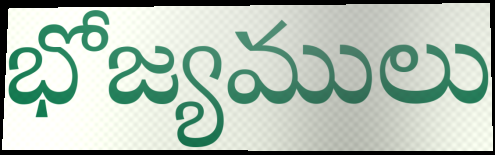
భోజ్యములు